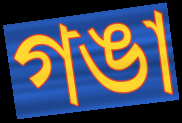
গঙা